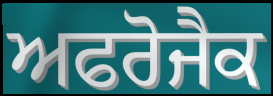
ਅਫਰੋਜੈਕ